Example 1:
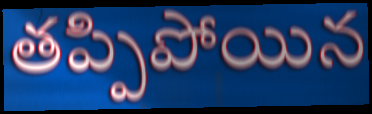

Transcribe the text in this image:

తప్పిపోయిన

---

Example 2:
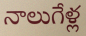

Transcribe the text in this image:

నాలుగేళ్ల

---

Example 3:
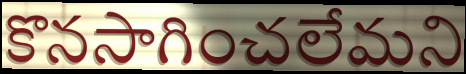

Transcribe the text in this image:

కొనసాగించలేమని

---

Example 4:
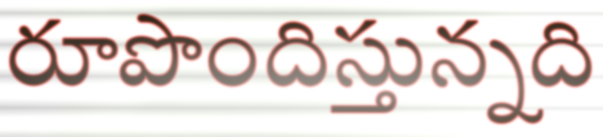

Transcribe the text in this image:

రూపొందిస్తున్నది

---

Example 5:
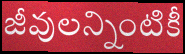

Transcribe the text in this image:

జీవులన్నింటికీ